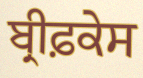
ਬ੍ਰੀਫ਼ਕੇਸ